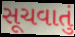
સૂચવાતું